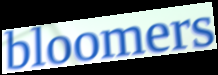
bloomers